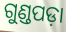
ଗୁଣ୍ଡପଡ଼ା